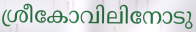
ശ്രീകോവിലിനോടു